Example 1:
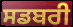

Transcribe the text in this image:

ਸਡਬਰੀ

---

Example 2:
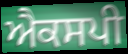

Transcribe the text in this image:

ਐਕਸਪੀ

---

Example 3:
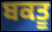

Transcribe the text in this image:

ਬਕਤੂ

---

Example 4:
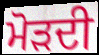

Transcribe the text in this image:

ਮੋੜਦੀ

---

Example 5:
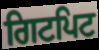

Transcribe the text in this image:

ਗਿਟਪਿਟ